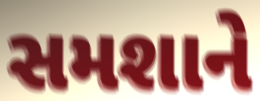
સમશાને